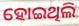
ହୋଇଥିଲି